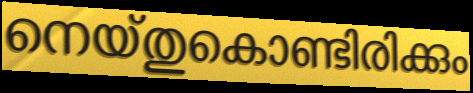
നെയ്തുകൊണ്ടിരിക്കും